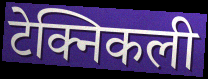
टेक्निकली